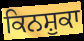
ਕਿਨਸ਼ੁਕਾ